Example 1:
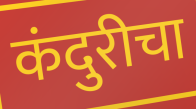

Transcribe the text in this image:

कंदुरीचा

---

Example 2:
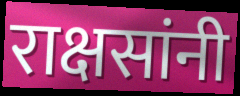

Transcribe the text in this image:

राक्षसांनी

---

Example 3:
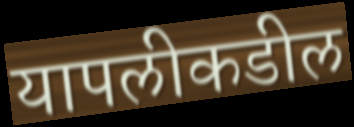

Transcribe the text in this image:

यापलीकडील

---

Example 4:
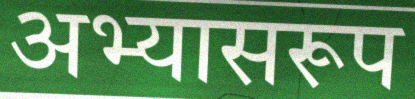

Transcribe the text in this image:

अभ्यासरूप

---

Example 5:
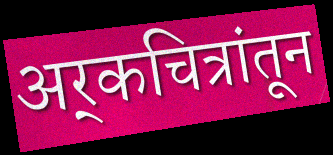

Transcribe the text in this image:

अर्कचित्रांतून